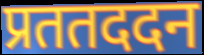
प्रततददन